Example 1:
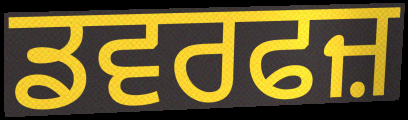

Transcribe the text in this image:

ਡਵਰਫਜ਼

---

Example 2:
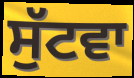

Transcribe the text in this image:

ਸੁੱਟਵਾ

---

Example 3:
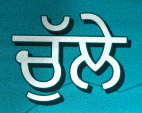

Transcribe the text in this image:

ਚੁੱਲੇ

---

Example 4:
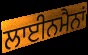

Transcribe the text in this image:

ਲਾਈਨਮੈਨਾਂ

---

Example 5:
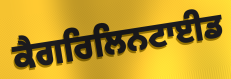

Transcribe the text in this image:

ਕੈਗਰਿਲਿਨਟਾਈਡ